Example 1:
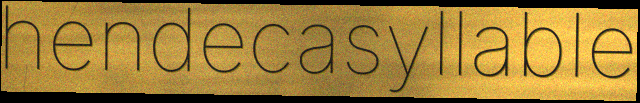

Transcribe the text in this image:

hendecasyllable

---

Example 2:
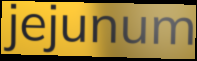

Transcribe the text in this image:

jejunum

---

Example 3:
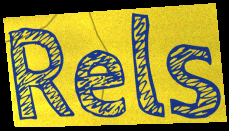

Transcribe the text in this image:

Rels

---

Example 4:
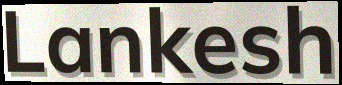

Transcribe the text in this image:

Lankesh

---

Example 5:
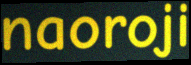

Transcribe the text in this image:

naoroji